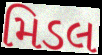
મિડલ